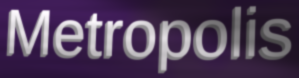
Metropolis